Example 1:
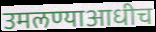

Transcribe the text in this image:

उमलण्याआधीच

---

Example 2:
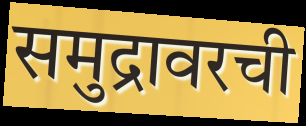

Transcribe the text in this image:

समुद्रावरची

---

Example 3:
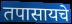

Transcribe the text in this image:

तपासायचे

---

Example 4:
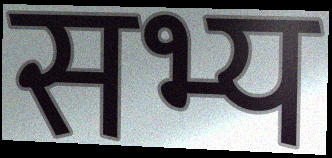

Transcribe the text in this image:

सभ्य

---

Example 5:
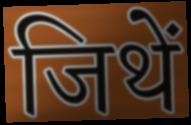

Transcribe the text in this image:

जिथें